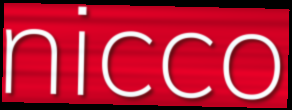
nicco